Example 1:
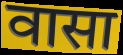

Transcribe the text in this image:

वासा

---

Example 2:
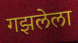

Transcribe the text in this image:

गझलेला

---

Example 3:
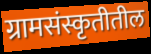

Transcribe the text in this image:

ग्रामसंस्कृतीतील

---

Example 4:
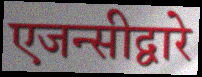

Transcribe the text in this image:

एजन्सीद्वारे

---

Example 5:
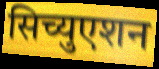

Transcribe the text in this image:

सिच्युएशन